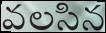
వలసిన